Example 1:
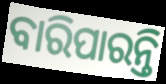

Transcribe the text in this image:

ବାରିପାରନ୍ତି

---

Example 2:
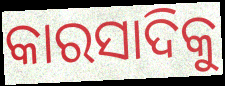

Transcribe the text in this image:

କାରସାଦିକୁ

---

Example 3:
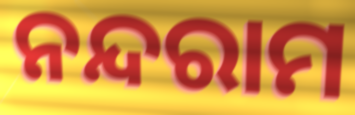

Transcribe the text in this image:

ନନ୍ଦରାମ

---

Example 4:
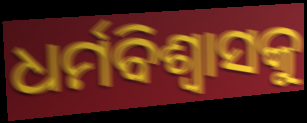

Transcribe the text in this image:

ଧର୍ମବିଶ୍ଵାସକୁ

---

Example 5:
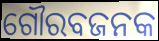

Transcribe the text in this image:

ଗୌରବଜନକ